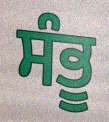
ਸੰਭੂ